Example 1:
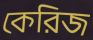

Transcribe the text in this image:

কেরিজ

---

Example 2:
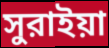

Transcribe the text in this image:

সুরাইয়া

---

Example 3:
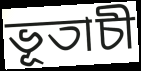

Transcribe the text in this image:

ভূতাচী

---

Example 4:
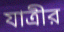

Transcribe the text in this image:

যাত্রীর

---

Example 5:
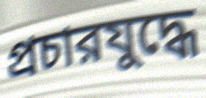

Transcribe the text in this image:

প্রচারযুদ্ধে